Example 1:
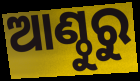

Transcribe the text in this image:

ଆଣ୍ଠୁରୁ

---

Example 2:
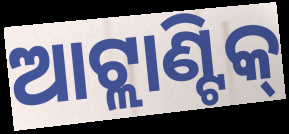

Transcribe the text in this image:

ଆଟ୍ଲାଣ୍ଟିକ୍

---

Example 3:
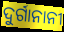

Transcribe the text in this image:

ଦୁର୍ଗାନାନୀ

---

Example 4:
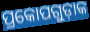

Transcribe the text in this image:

ପ୍ରକୋପଗୁଡ଼ାକ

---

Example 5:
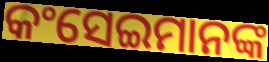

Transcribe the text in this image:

କଂସେଇମାନଙ୍କ